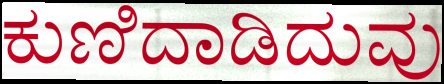
ಕುಣಿದಾಡಿದುವು